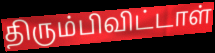
திரும்பிவிட்டாள்